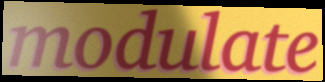
modulate